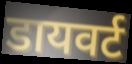
डायवर्ट